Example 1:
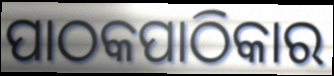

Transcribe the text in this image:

ପାଠକପାଠିକାର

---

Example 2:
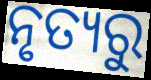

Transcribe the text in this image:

ନୃତ୍ୟରୁ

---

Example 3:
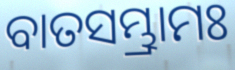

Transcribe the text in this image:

ବାତସମ୍ଭ୍ରାମଃ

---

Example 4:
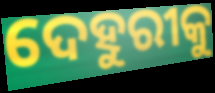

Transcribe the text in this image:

ଦେହୁରୀକୁ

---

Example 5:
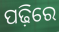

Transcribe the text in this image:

ପଢ଼ିରେ